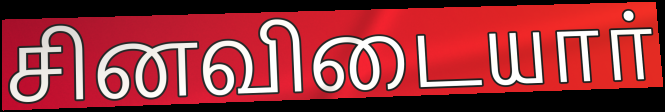
சினவிடையார்